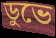
ডুভে